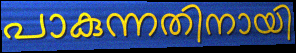
പാകുന്നതിനായി